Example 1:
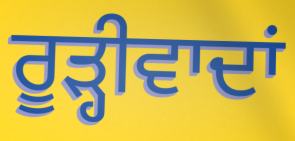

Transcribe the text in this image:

ਰੂੜ੍ਹੀਵਾਦਾਂ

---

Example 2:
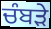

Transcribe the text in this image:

ਚੰਬੜੇ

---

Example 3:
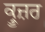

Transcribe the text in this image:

ਕ੍ਰੂਜ਼ਰ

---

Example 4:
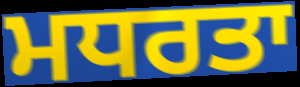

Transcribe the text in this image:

ਮਧਰਤਾ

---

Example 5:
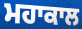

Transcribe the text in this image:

ਮਹਾਕਾਲ